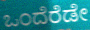
ಒಂದೆರೆಡೇ